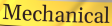
Mechanical